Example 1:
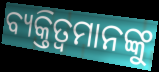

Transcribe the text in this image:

ବ୍ୟକ୍ତିତ୍ବମାନଙ୍କୁ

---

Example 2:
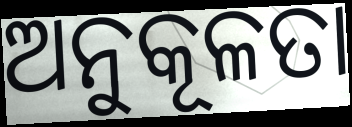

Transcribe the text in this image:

ଅନୁକୂଳତା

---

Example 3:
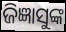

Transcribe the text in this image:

ଜିଜ୍ଞାସୁଙ୍କ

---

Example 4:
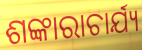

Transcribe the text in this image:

ଶଙ୍କାରାଚାର୍ଯ୍ୟ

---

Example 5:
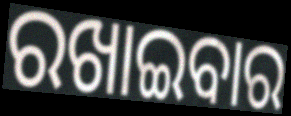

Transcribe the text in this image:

ରଖାଇବାର